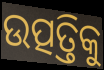
ଉତ୍ପତ୍ତିକୁ